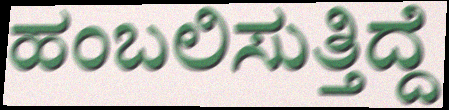
ಹಂಬಲಿಸುತ್ತಿದ್ದೆ